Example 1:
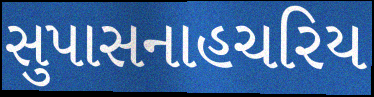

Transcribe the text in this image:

સુપાસનાહચરિય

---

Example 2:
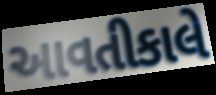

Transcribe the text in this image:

આવતીકાલે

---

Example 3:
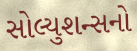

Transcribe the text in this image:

સોલ્યુશન્સનો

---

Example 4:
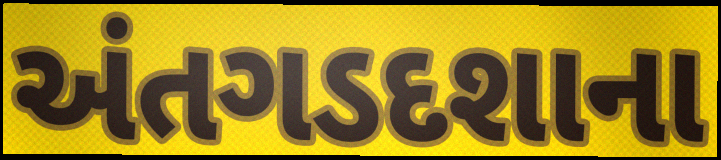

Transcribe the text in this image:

અંતગડદશાના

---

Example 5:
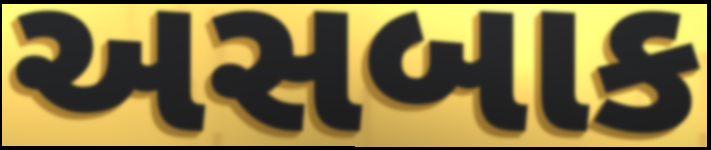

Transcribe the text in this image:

અસબાક